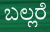
ಬಲ್ಲರೆ